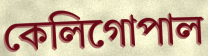
কেলিগোপাল